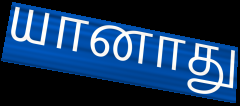
யானாது